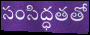
సంసిద్ధతతో